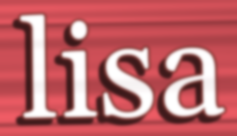
lisa